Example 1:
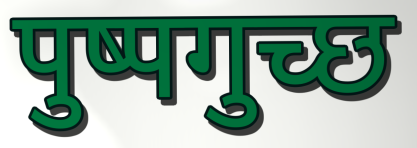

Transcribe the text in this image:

पुष्पगुच्छ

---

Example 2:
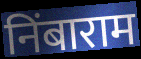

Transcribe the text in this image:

निंबाराम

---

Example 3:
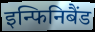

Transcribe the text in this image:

इन्फिनिबैंड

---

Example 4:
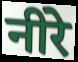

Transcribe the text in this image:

नीरे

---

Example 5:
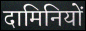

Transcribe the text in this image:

दामिनियों